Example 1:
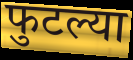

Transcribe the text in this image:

फुटल्या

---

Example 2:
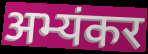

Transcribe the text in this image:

अभ्यंकर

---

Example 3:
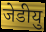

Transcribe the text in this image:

जेडीयु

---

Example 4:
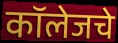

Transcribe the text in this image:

कॉलेजचे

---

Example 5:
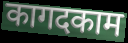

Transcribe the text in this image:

कागदकाम